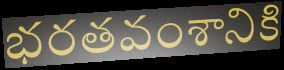
భరతవంశానికి